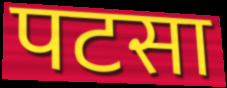
पटसा